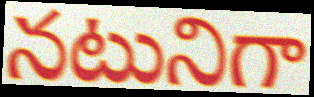
నటునిగా